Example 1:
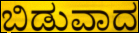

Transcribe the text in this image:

ಬಿಡುವಾದ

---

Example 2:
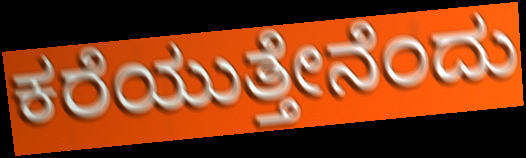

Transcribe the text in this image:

ಕರೆಯುತ್ತೇನೆಂದು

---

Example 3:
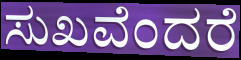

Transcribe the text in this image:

ಸುಖವೆಂದರೆ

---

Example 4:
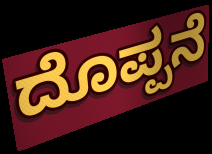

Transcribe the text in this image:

ದೊಪ್ಪನೆ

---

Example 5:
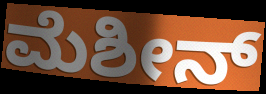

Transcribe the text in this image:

ಮೆಶೀನ್